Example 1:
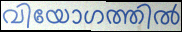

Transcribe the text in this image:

വിയോഗത്തിൽ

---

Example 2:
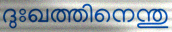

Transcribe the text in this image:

ദുഃഖത്തിനെന്തു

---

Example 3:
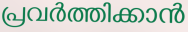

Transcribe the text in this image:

പ്രവർത്തിക്കാൻ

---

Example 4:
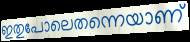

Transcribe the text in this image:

ഇതുപോലെതന്നെയാണ്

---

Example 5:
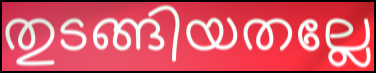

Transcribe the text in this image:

തുടങ്ങിയതല്ലേ